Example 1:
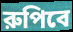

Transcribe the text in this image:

রুপিবে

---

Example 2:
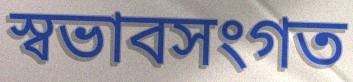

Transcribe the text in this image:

স্বভাবসংগত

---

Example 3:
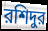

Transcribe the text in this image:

রশিদুর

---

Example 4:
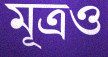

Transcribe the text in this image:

মূত্রও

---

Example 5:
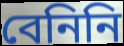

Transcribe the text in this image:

বেনিনি